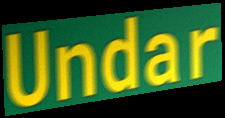
Undar